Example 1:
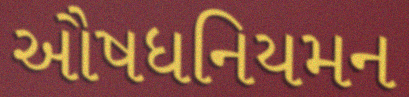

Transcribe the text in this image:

ઔષધનિયમન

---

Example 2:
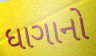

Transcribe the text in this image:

ધાગાનો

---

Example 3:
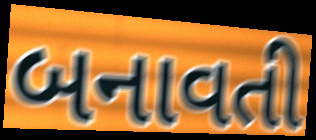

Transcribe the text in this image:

બનાવતી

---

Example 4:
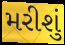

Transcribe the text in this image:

મરીશું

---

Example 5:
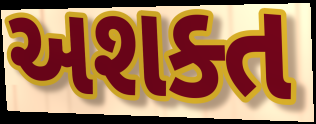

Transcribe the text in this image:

અશક્ત